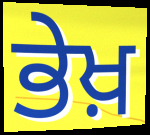
ਭੇਖ਼